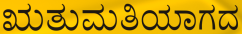
ಋತುಮತಿಯಾಗದ